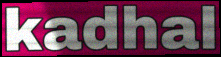
kadhal